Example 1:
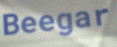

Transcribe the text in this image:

Beegar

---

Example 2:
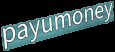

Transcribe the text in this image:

payumoney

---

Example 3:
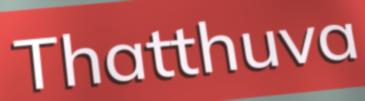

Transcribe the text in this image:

Thatthuva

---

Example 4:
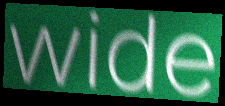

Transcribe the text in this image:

wide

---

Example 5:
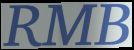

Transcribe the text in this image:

RMB